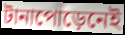
টানাপোড়েনেই